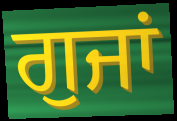
ਗੁਜਾਂ